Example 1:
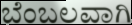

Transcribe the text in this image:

ಬೆಂಬಲವಾಗಿ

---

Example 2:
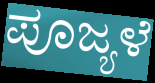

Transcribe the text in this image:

ಪೂಜ್ಯಳೆ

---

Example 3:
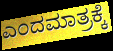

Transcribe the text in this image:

ಎಂದಮಾತ್ರಕ್ಕೆ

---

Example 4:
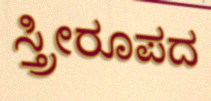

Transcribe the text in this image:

ಸ್ತ್ರೀರೂಪದ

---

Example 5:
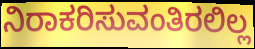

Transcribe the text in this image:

ನಿರಾಕರಿಸುವಂತಿರಲಿಲ್ಲ